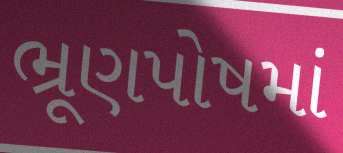
ભ્રૂણપોષમાં